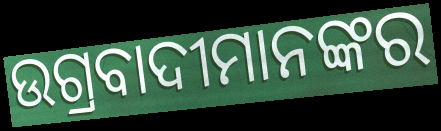
ଉଗ୍ରବାଦୀମାନଙ୍କର